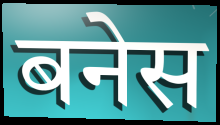
बनेस